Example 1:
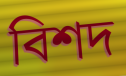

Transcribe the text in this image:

বিশদ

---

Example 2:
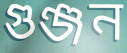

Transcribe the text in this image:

গুঞ্জন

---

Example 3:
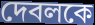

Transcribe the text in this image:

দেবলকে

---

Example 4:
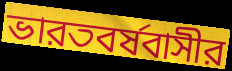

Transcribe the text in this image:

ভারতবর্ষবাসীর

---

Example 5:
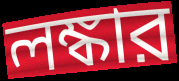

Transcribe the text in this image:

লঙ্কার